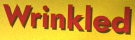
Wrinkled